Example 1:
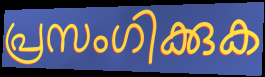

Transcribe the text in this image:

പ്രസംഗിക്കുക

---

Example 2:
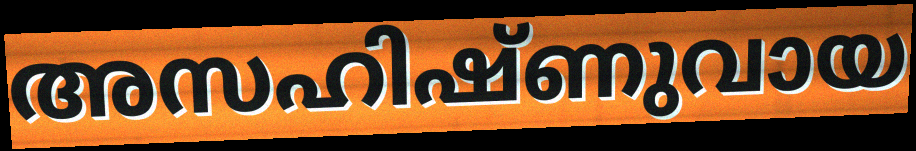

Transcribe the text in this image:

അസഹിഷ്ണുവായ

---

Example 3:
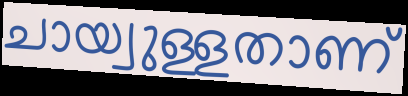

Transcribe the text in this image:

ചായ്വുള്ളതാണ്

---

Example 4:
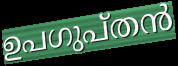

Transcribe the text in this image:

ഉപഗുപ്തൻ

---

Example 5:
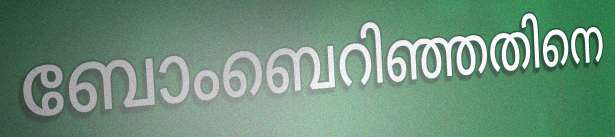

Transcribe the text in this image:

ബോംബെറിഞ്ഞതിനെ